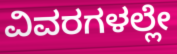
ವಿವರಗಳಲ್ಲೇ